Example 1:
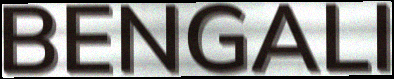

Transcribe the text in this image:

BENGALI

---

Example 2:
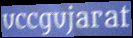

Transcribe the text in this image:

uccgujarat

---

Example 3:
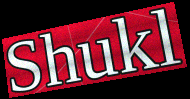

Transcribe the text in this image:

Shukl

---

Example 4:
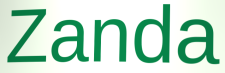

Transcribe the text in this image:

Zanda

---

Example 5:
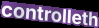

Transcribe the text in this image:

controlleth